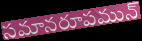
సమానరూపమున్